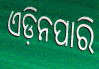
ଏଡ଼ିନପାରି